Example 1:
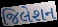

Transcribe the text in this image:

જિલેશન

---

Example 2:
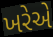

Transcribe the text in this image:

ખરેએ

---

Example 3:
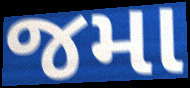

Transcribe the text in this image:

જમા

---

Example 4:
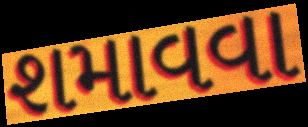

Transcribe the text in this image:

શમાવવા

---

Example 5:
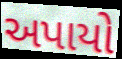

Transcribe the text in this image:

અપાયો